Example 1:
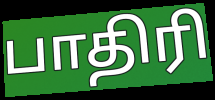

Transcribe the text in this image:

பாதிரி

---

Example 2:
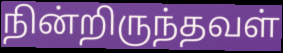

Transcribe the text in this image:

நின்றிருந்தவள்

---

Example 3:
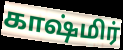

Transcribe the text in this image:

காஷ்மிர்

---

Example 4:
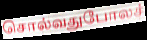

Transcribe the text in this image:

சொல்வதுபோலச்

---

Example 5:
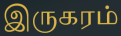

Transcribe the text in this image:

இருகரம்